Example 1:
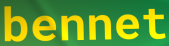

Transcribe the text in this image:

bennet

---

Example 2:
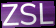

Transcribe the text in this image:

ZSL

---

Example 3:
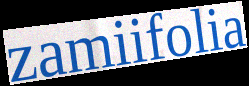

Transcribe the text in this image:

zamiifolia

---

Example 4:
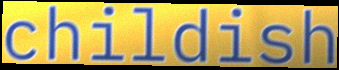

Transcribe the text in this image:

childish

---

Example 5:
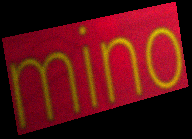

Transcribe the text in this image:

mino